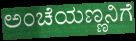
ಅಂಚೆಯಣ್ಣನಿಗೆ